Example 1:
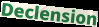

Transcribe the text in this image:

Declension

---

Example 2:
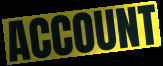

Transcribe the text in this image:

ACCOUNT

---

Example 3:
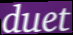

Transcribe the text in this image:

duet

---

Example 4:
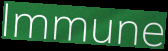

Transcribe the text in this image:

Immune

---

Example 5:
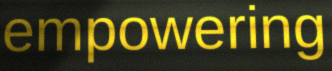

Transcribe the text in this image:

empowering